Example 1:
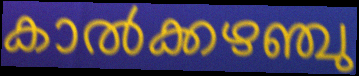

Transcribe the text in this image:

കാൽക്കഴഞ്ചു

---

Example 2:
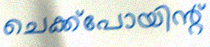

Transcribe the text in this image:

ചെക്ക്പോയിന്റ്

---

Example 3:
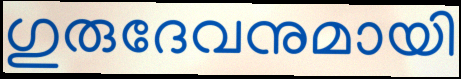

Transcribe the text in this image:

ഗുരുദേവനുമായി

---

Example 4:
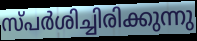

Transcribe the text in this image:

സ്പർശിച്ചിരിക്കുന്നു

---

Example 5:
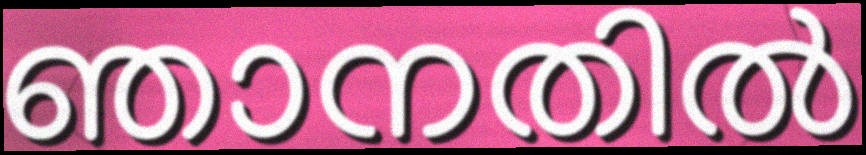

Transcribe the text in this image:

ഞാനതിൽ